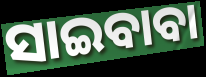
ସାଇବାବା